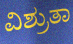
ವಿಶ್ರುತಾ